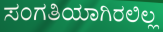
ಸಂಗತಿಯಾಗಿರಲಿಲ್ಲ